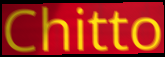
Chitto